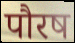
पौरष